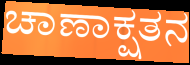
ಚಾಣಾಕ್ಷತನ